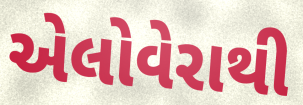
એલોવેરાથી